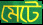
মেটে